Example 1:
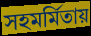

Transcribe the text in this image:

সহমর্মিতায়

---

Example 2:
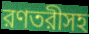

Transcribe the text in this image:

রণতরীসহ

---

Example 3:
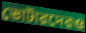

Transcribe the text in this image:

ভোটারদেরও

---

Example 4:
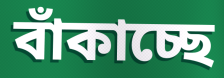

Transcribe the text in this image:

বাঁকাচ্ছে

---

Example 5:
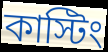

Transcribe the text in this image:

কাস্টিং